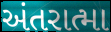
અંતરાત્મા